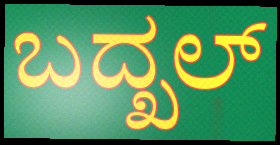
ಬದ್ಖಲ್